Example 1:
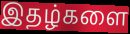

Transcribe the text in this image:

இதழ்களை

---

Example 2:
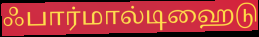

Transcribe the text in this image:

ஃபார்மால்டிஹைடு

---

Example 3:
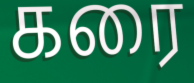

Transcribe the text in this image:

கரை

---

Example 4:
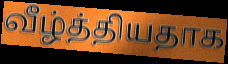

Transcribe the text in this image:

வீழ்த்தியதாக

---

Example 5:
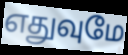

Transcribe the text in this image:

எதுவுமே